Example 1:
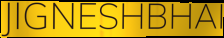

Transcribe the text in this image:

JIGNESHBHAI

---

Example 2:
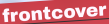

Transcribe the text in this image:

frontcover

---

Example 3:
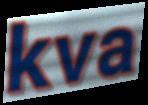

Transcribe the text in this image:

kva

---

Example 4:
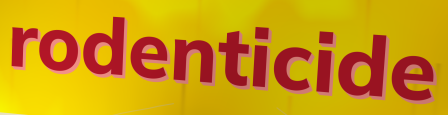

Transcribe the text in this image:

rodenticide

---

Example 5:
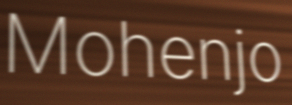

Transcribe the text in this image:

Mohenjo